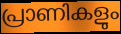
പ്രാണികളും